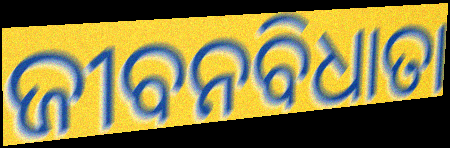
ଜୀବନବିଧାତା